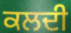
ਕਲਦੀ